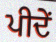
ਪੀਦੇਂ